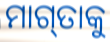
ମାଗ୍‌ତାକୁ